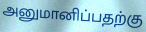
அனுமானிப்பதற்கு